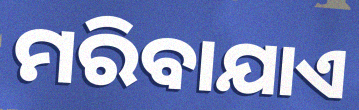
ମରିବାଯାଏ